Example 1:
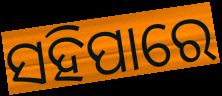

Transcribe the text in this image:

ସହିପାରେ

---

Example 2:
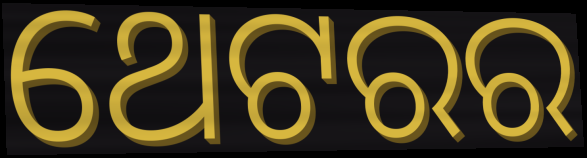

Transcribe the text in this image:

ଥେଟରର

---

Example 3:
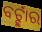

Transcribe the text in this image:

ବର୍ଚ୍ଛାର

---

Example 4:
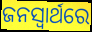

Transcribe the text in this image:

ଜନସ୍ୱାର୍ଥରେ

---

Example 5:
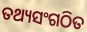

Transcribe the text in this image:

ତଥ୍ୟସଂଗଠିତ